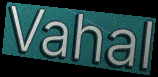
Vahal